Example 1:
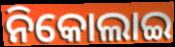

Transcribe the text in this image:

ନିକୋଲାଇ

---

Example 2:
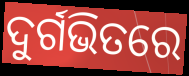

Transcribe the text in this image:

ଦୁର୍ଗଭିତରେ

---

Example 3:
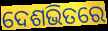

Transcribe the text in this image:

ଦେଶଭିତରେ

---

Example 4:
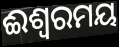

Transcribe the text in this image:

ଈଶ୍ଵରମୟ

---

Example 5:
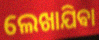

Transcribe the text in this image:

ଲେଖାଯିଵା